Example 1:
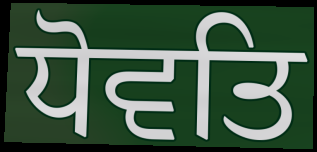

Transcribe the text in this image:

ਧੋਵਤਿ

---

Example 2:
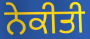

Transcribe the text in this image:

ਨੇਕੀਤੀ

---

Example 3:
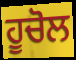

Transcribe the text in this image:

ਹੂਚੋਲ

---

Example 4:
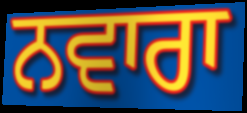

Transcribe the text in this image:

ਨਵਾਰਾ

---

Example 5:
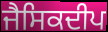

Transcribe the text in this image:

ਜੈਸਿਕਦੀਪ